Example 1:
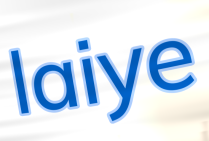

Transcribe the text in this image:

laiye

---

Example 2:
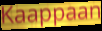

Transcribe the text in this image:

Kaappaan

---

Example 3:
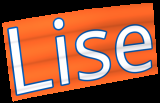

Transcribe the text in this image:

Lise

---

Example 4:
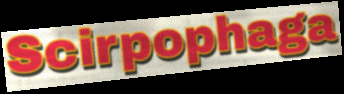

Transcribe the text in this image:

Scirpophaga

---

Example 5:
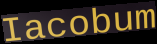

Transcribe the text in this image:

Iacobum